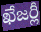
ఖేజర్లీ